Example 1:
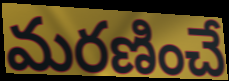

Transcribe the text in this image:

మరణించే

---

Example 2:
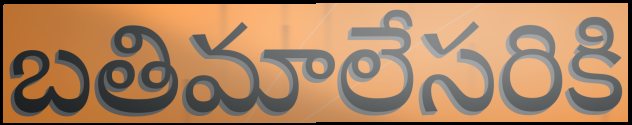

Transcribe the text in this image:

బతిమాలేసరికి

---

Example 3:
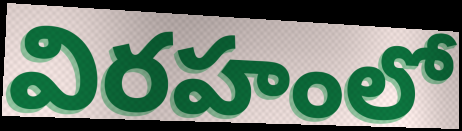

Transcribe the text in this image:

విరహంలో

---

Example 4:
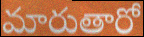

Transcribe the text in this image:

మారుతారో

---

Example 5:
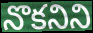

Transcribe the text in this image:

నొకనిని